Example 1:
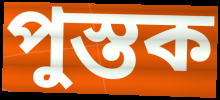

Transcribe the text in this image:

পুস্তক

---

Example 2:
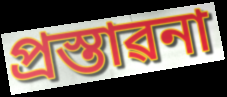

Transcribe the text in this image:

প্ৰস্তাৱনা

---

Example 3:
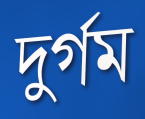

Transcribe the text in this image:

দুৰ্গম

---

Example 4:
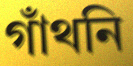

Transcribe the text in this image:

গাঁথনি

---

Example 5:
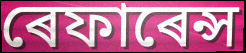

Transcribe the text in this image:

ৰেফাৰেন্স